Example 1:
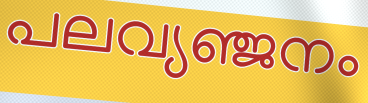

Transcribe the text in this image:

പലവ്യഞ്ജനം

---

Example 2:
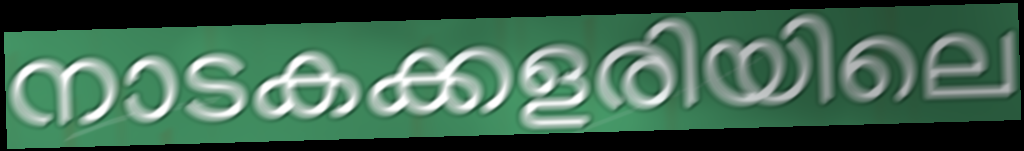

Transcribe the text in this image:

നാടകക്കളരിയിലെ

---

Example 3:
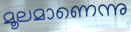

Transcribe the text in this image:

മൂലമാണെന്നു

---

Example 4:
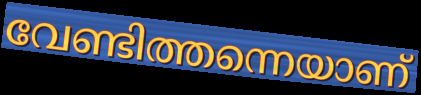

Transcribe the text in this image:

വേണ്ടിത്തന്നെയാണ്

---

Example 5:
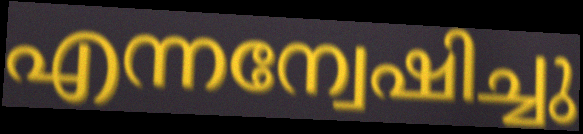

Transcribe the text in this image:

എന്നന്വേഷിച്ചു